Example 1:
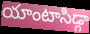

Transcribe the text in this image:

యాంటాసిడ్గా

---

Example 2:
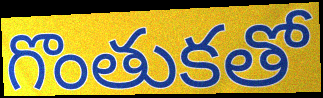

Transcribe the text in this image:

గొంతుకతో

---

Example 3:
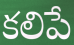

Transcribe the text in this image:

కలిపే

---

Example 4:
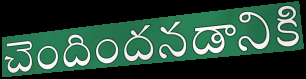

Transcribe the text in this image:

చెందిందనడానికి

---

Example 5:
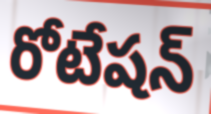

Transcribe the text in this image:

రోటేషన్